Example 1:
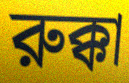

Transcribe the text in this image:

রুক্কা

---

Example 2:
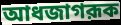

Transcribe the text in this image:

আধজাগরূক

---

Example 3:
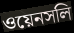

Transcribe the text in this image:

ওয়েনসলি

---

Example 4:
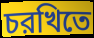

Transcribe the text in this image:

চরখিতে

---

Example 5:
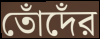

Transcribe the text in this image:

তোঁদেঁর